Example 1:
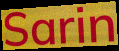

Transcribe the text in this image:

Sarin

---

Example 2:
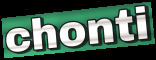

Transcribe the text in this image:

chonti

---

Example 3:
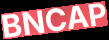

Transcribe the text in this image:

BNCAP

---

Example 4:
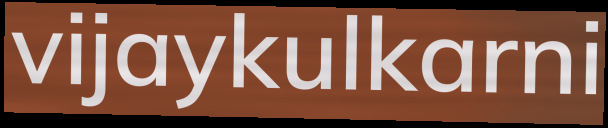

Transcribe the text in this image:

vijaykulkarni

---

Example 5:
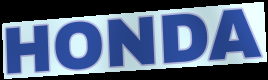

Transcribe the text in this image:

HONDA